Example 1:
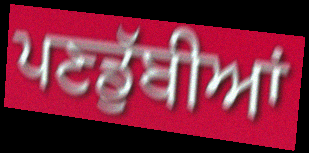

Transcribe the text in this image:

ਪਣਡੁੱਬੀਆਂ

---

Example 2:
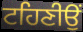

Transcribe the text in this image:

ਟਹਿਣੀਉਂ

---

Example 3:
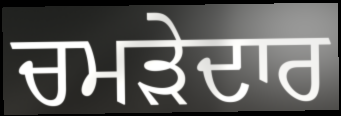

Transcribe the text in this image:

ਚਮੜੇਦਾਰ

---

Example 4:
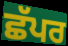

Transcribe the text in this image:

ਛੱਪਰ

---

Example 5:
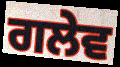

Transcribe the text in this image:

ਗਲੇਵ